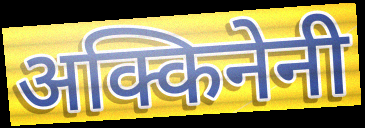
अक्किनेनी